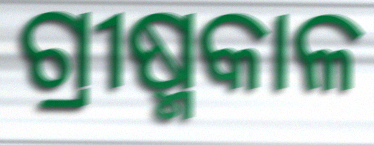
ଗ୍ରୀଷ୍ମକାଳ